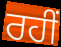
ਰਹੀਂ